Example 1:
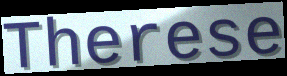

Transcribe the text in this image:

Therese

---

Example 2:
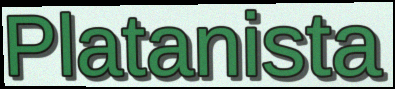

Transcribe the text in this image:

Platanista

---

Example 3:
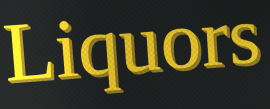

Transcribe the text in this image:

Liquors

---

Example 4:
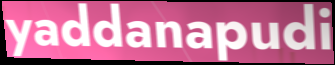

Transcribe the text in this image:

yaddanapudi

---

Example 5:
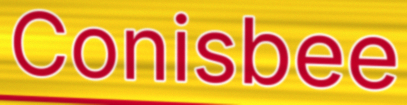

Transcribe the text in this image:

Conisbee